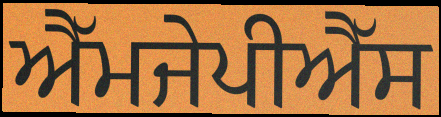
ਐੱਮਜੇਪੀਐੱਸ